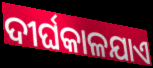
ଦୀର୍ଘକାଳଯାଏ